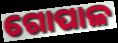
ଗୋପାଳ